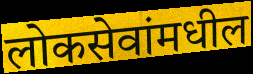
लोकसेवांमधील